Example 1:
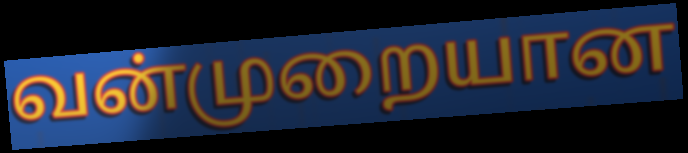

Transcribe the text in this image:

வன்முறையான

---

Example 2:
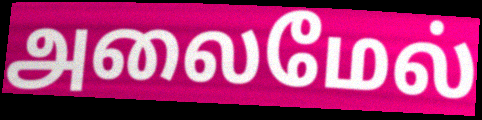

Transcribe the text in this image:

அலைமேல்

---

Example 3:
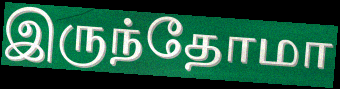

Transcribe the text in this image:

இருந்தோமா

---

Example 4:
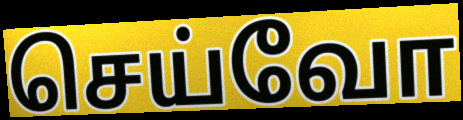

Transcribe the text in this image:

செய்வோ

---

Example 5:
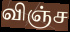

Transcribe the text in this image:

விஞ்ச